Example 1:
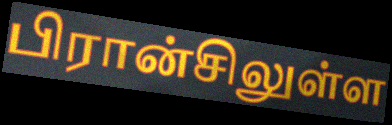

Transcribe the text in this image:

பிரான்சிலுள்ள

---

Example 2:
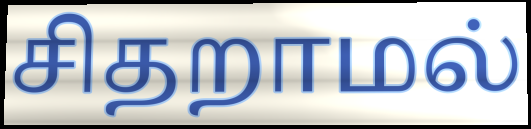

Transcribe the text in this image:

சிதறாமல்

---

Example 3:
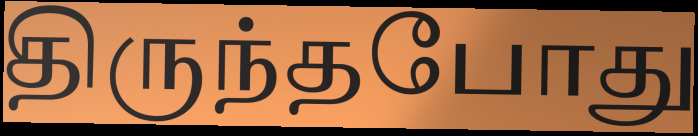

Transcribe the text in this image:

திருந்தபோது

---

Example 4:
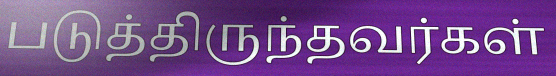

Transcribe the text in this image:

படுத்திருந்தவர்கள்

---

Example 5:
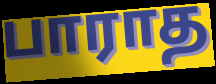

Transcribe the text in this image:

பாராத